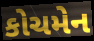
કોચમેન